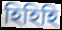
হিহিহি